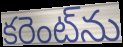
కరెంట్‌ను